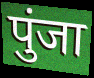
पुंजा